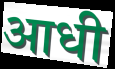
आधी